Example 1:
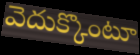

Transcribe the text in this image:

వెదుక్కొంటూ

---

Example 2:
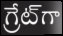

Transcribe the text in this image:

గ్రేట్‌గా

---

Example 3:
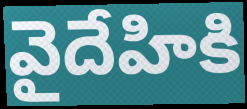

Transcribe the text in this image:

వైదేహికి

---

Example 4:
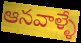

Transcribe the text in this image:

ఆనవాళ్ళే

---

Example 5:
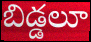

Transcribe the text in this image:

బిడ్డలూ